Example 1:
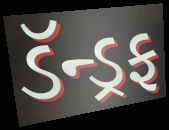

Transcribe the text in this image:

ડૅન્ડ્રફ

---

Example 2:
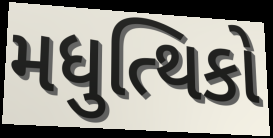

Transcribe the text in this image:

મધુત્થિકો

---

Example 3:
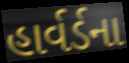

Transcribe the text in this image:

હાર્વર્ડના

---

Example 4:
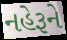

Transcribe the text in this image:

નહેરૂને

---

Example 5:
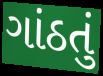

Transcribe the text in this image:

ગાંઠતું